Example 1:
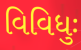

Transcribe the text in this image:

વિવિધુઃ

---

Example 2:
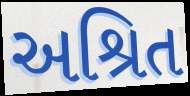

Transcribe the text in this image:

અશ્રિત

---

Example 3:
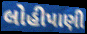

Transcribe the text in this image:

લોહીપાણી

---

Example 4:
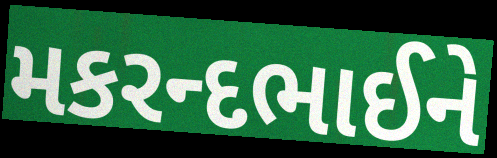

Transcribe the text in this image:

મકરન્દભાઈને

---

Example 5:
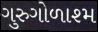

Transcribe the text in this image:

ગુરુગોળાશ્મ